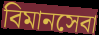
বিমানসেবা